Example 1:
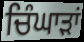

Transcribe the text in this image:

ਚਿੰਘਾੜਾਂ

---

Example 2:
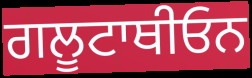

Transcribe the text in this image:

ਗਲੂਟਾਥੀਓਨ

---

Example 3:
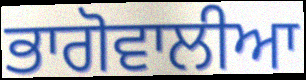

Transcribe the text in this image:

ਭਾਗੋਵਾਲੀਆ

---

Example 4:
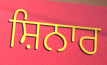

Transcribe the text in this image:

ਸ਼ਿਨਾਰ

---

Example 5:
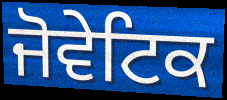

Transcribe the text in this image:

ਜੋਵੇਟਿਕ